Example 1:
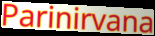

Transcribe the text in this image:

Parinirvana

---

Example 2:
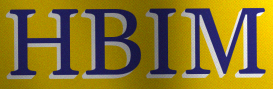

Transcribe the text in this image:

HBIM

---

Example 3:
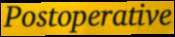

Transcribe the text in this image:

Postoperative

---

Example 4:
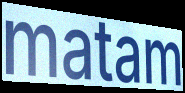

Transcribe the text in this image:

matam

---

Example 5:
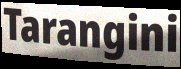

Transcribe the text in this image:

Tarangini